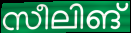
സീലിങ്